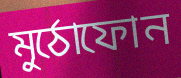
মুঠোফোন